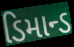
ડિમાન્ડ